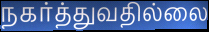
நகர்த்துவதில்லை